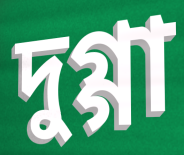
দুগ্গা